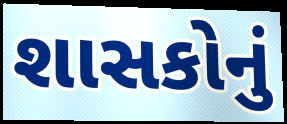
શાસકોનું